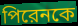
পিরেনকে